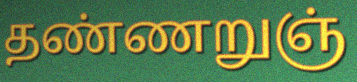
தண்ணறுஞ்